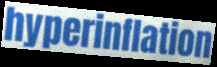
hyperinflation